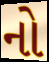
નો